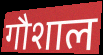
गौशाल